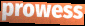
prowess